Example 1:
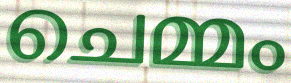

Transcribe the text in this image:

ചെമ്മം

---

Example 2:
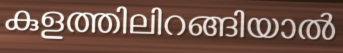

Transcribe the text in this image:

കുളത്തിലിറങ്ങിയാൽ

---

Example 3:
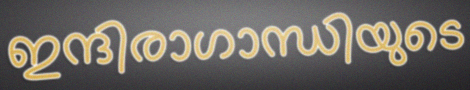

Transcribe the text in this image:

ഇന്ദിരാഗാന്ധിയുടെ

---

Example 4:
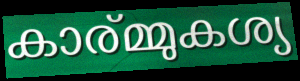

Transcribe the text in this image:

കാര്മ്മുകശ്യ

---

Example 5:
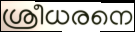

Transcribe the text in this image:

ശ്രീധരനെ